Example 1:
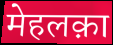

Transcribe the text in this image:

मेहलक़ा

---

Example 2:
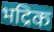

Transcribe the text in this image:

भद्रिक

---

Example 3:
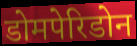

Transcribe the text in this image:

डोमपेरिडोन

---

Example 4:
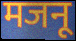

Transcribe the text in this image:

मजनू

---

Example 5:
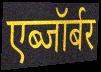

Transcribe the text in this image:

एब्जॉर्बर